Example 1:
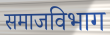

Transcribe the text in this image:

समाजविभाग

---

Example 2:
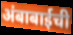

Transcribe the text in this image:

अंबाबाईची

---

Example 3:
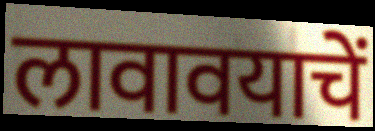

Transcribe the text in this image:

लावावयाचें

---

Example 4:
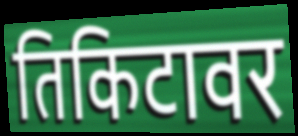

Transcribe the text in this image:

तिकिटावर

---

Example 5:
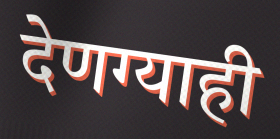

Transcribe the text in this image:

देणग्याही